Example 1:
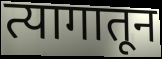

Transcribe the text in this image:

त्यागातून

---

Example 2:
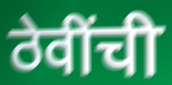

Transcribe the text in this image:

ठेवींची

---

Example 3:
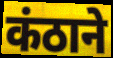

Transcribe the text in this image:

कंठाने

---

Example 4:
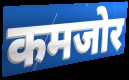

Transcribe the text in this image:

कमजोर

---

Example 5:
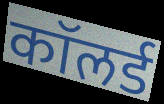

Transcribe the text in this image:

कॉलर्ड